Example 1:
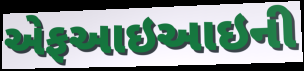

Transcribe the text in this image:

એફઆઇઆઇની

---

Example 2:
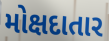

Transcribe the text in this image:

મોક્ષદાતાર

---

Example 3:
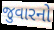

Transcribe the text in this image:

જુવારનો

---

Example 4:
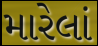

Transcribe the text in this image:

મારેલાં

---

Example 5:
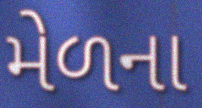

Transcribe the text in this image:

મેળના